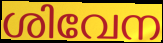
ശിവേന